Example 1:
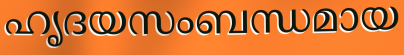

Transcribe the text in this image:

ഹൃദയസംബന്ധമായ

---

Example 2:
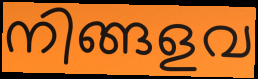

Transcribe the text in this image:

നിങ്ങളവ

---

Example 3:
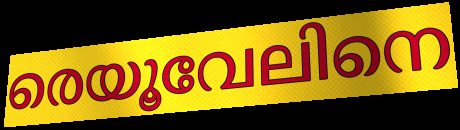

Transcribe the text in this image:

രെയൂവേലിനെ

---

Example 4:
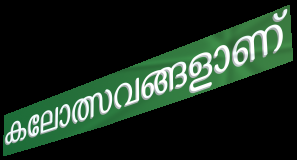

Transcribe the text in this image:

കലോത്സവങ്ങളാണ്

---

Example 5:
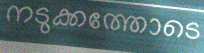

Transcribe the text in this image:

നടുക്കത്തോടെ